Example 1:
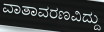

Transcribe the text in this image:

ವಾತಾವರಣವಿದ್ದು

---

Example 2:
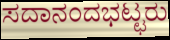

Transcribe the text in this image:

ಸದಾನಂದಭಟ್ಟರು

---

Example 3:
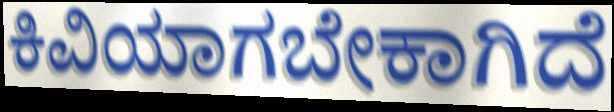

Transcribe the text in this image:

ಕಿವಿಯಾಗಬೇಕಾಗಿದೆ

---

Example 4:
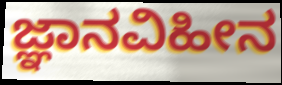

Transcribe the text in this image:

ಜ್ಞಾನವಿಹೀನ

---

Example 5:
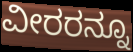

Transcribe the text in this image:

ವೀರರನ್ನೂ